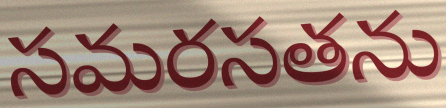
సమరసతను